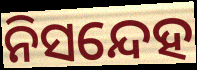
ନିସନ୍ଦେହ